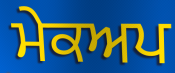
ਮੇਕਅਪ